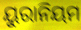
ୟୁରାନିୟମ